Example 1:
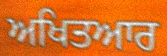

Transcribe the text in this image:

ਅਖਿਤਆਰ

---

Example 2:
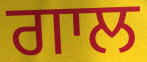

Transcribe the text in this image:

ਗਾਲ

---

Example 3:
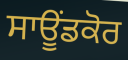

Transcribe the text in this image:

ਸਾਊਂਡਕੋਰ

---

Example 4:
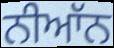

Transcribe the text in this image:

ਨੀਆੱਨ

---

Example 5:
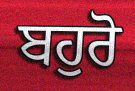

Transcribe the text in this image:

ਬਹੁਰੋ